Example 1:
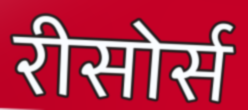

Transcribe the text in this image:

रीसोर्स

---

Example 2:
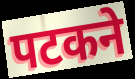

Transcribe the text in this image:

पटकने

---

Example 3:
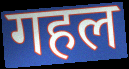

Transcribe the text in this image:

गहल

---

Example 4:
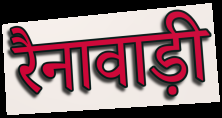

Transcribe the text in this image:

रैनावाड़ी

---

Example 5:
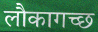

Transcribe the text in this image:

लौकागच्छ